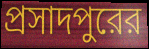
প্রসাদপুরের